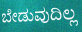
ಬೇಡುವುದಿಲ್ಲ